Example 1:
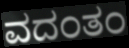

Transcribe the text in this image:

ವದಂತಂ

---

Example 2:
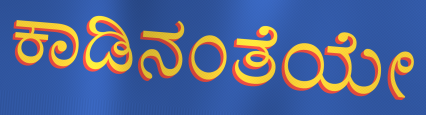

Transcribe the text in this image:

ಕಾಡಿನಂತೆಯೇ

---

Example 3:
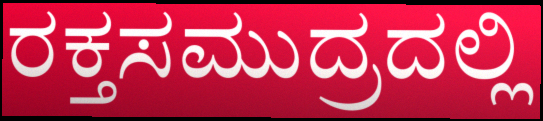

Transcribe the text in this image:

ರಕ್ತಸಮುದ್ರದಲ್ಲಿ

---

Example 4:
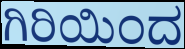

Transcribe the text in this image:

ಗಿರಿಯಿಂದ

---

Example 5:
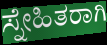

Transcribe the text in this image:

ಸ್ನೇಹಿತರಾಗಿ